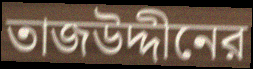
তাজউদ্দীনের